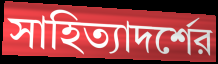
সাহিত্যাদর্শের